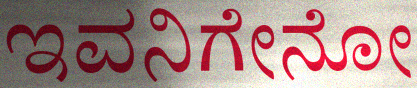
ಇವನಿಗೇನೋ